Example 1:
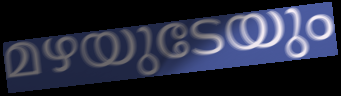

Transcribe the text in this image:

മഴയുടേയും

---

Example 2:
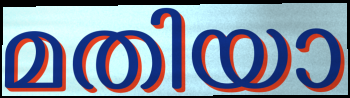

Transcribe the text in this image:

മതിയാ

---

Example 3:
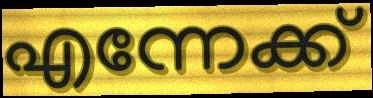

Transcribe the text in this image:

എന്നേക്ക്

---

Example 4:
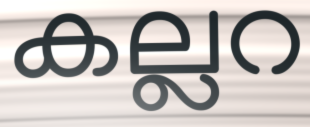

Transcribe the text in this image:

കല്ലറ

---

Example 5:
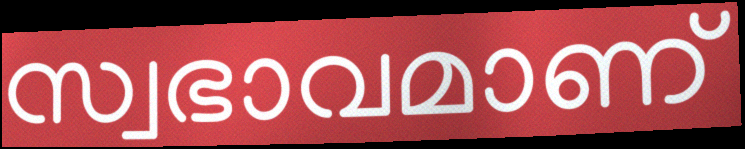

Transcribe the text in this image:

സ്വഭാവമാണ്